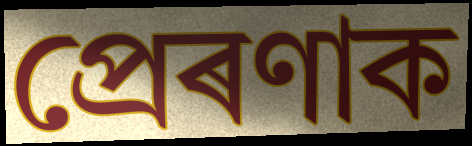
প্ৰেৰণাক